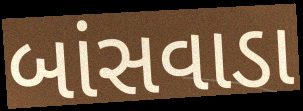
બાંસવાડા